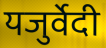
यजुर्वेदी